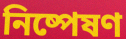
নিষ্পেষণ